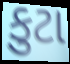
કુટા